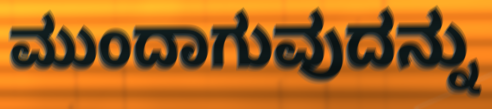
ಮುಂದಾಗುವುದನ್ನು